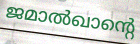
ജമാൽഖാന്റെ